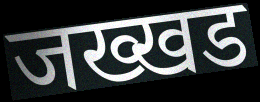
जख्खड